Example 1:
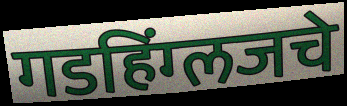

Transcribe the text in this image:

गडहिंग्लजचे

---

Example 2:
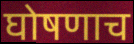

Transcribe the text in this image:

घोषणाच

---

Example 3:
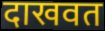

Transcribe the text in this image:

दाखवत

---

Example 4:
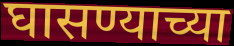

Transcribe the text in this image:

घासण्याच्या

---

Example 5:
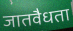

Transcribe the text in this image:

जातवैधता